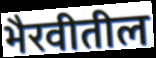
भैरवीतील